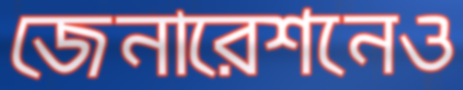
জেনারেশনেও